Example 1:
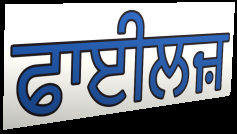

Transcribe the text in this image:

ਫਾਈਲਜ਼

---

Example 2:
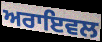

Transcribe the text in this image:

ਅਰਾਇਵਲ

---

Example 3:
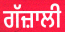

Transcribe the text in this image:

ਗੱਜ਼ਾਲੀ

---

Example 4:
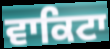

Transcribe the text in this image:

ਵਾਕਿਟਾ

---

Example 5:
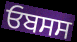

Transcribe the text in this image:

ਓਬਸਸ